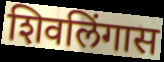
शिवलिंगास